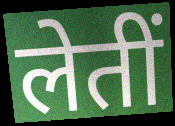
लेतीं